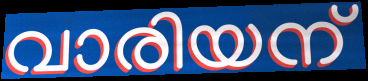
വാരിയന്